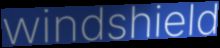
windshield